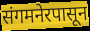
संगमनेरपासून